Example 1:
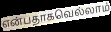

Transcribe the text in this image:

என்பதாகவெல்லாம்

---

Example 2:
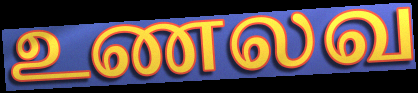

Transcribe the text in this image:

உணலவ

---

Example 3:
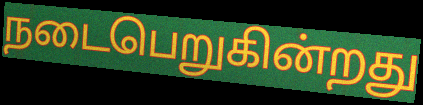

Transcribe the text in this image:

நடைபெறுகின்றது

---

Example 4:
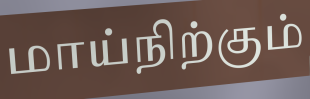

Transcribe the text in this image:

மாய்நிற்கும்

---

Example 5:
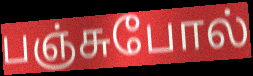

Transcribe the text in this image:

பஞ்சுபோல்